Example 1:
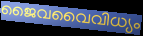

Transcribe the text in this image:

ജൈവവൈവിധ്യം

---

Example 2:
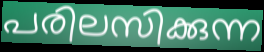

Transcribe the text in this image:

പരിലസിക്കുന്ന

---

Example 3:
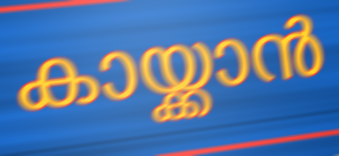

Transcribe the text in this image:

കായ്ക്കാൻ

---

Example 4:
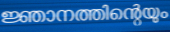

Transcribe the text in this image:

ജ്ഞാനത്തിന്റെയും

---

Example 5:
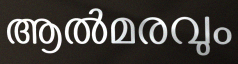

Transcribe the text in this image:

ആൽമരവും